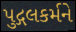
પુદ્ગલકર્મને